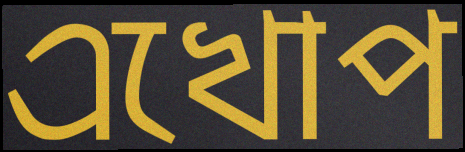
এখোপ